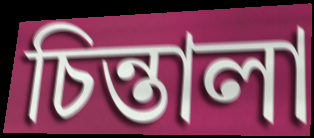
চিন্তালা